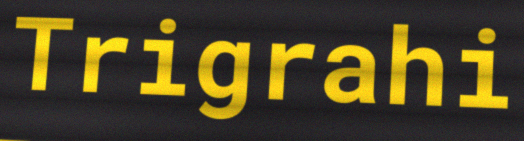
Trigrahi